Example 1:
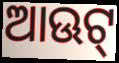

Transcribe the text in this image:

ଆଊଟ୍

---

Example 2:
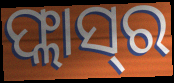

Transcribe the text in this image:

ଫ୍ଲାସ୍‌ର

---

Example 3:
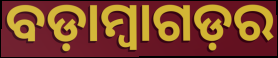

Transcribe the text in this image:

ବଡ଼ାମ୍ବାଗଡ଼ର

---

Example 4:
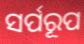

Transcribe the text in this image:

ସର୍ପରୂପ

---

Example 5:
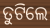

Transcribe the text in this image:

ତୁଟିଲେ